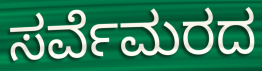
ಸರ್ವೆಮರದ